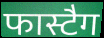
फास्टैग